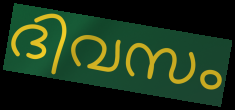
ദിവസം